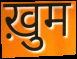
ख़ुम